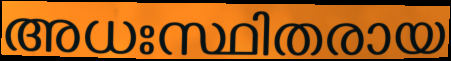
അധഃസ്ഥിതരായ